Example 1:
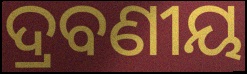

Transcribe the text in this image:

ଦ୍ରବଣୀୟ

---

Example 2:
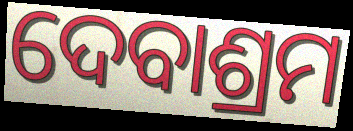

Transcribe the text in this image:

ଦେବାଶ୍ରମ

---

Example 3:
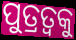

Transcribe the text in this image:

ପୁତ୍ରତ୍ଵକୁ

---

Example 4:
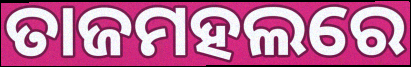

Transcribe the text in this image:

ତାଜମହଲରେ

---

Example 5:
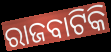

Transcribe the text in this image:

ରାଜବାଟିକି